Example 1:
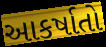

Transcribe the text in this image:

આકર્ષાતો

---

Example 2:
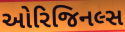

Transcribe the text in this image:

ઓરિજિનલ્સ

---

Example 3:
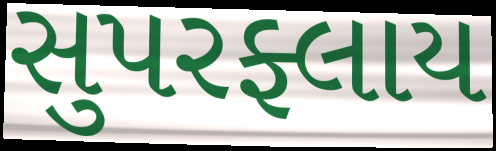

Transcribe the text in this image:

સુપરફ્લાય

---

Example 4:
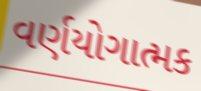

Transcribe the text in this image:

વર્ણયોગાત્મક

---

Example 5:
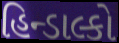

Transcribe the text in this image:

હિન્ડાલ્કો